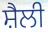
ਸ਼ੈਲੀ